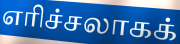
எரிச்சலாகக்